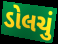
ડોલચું